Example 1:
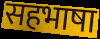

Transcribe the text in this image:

सहभाषा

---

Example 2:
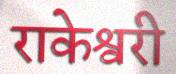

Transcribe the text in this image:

राकेश्वरी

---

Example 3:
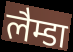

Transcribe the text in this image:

लैम्डा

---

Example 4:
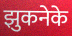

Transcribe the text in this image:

झुकनेके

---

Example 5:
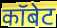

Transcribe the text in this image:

कॉबेट